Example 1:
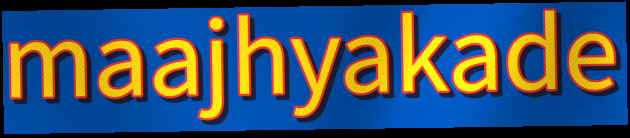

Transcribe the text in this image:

maajhyakade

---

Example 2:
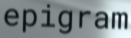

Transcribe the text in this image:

epigram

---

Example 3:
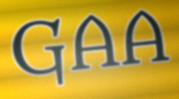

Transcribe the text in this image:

GAA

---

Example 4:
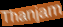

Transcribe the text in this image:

Thanjam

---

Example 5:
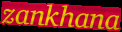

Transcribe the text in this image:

zankhana